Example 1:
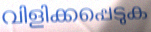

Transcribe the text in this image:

വിളിക്കപ്പെടുക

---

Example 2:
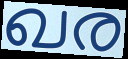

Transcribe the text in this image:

ഖര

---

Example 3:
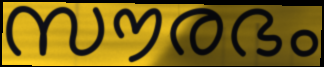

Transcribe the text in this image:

സൗരഭം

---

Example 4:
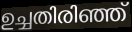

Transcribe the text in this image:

ഉച്ചതിരിഞ്ഞ്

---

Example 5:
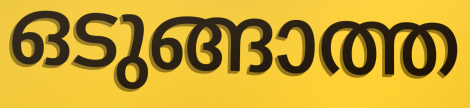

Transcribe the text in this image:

ഒടുങ്ങാത്ത